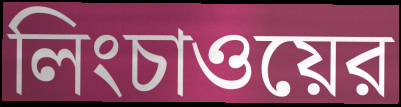
লিংচাওয়ের